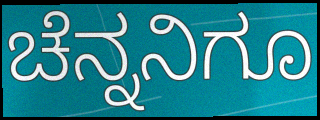
ಚೆನ್ನನಿಗೂ